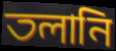
তলানি